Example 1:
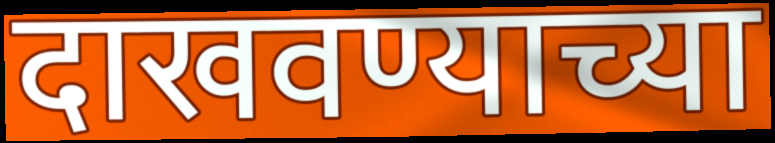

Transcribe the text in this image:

दाखवण्याच्या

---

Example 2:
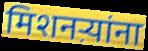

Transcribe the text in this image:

मिशनऱ्‍यांना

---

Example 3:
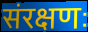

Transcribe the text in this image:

संरक्षणः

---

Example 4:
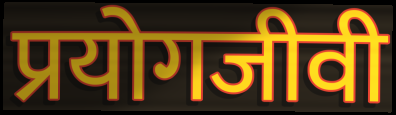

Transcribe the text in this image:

प्रयोगजीवी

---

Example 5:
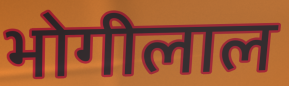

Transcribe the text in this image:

भोगीलाल